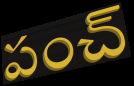
పంచ్